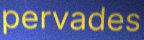
pervades